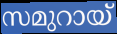
സമുറായ്